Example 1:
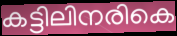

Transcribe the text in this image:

കട്ടിലിനരികെ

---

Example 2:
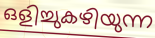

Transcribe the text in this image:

ഒളിച്ചുകഴിയുന്ന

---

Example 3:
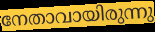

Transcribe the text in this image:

നേതാവായിരുന്നു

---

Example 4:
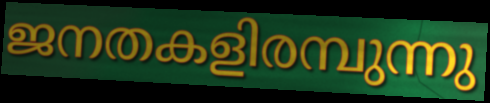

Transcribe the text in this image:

ജനതകളിരമ്പുന്നു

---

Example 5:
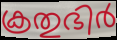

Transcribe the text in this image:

ക്രതുഭിർ